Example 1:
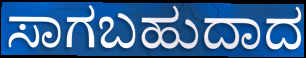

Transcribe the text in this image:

ಸಾಗಬಹುದಾದ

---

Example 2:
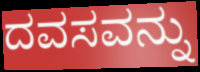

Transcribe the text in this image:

ದವಸವನ್ನು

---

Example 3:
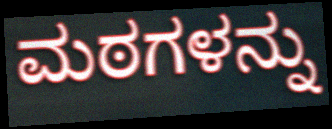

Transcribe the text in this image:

ಮಠಗಳನ್ನು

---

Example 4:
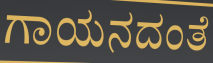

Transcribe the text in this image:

ಗಾಯನದಂತೆ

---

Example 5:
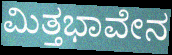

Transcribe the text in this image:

ಮಿತ್ತಭಾವೇನ